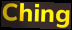
Ching